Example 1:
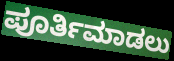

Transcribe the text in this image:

ಪೂರ್ತಿಮಾಡಲು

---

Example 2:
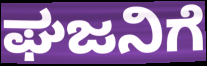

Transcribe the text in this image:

ಘಜನಿಗೆ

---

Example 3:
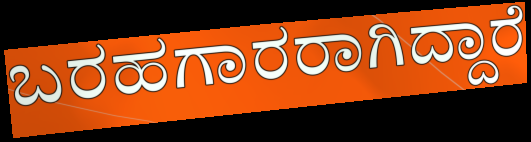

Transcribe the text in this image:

ಬರಹಗಾರರಾಗಿದ್ದಾರೆ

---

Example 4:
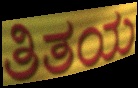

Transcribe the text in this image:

ತಿತಯ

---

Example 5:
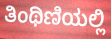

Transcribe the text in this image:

ತಿಂಥಿಣಿಯಲ್ಲಿ